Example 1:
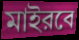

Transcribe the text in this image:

মাইরবে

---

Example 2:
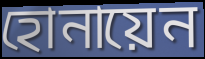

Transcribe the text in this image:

হোনায়েন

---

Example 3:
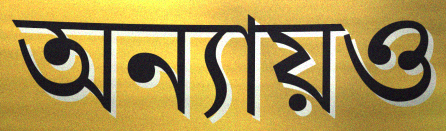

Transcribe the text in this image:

অন্যায়ও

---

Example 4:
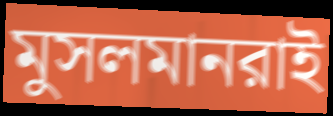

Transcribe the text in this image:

মুসলমানরাই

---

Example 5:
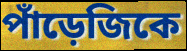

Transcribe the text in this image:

পাঁড়েজিকে